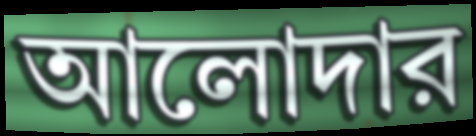
আলোদার